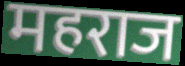
महराज